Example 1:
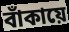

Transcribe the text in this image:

বাঁকায়ে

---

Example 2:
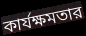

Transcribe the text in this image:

কার্যক্ষমতার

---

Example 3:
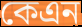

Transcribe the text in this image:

কেএন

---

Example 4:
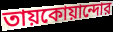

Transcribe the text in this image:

তায়কোয়ান্দোর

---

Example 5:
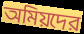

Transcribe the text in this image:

অমিয়দের